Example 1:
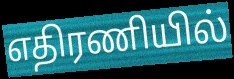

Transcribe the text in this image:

எதிரணியில்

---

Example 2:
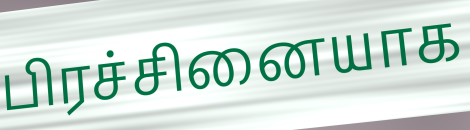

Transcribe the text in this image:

பிரச்சினையாக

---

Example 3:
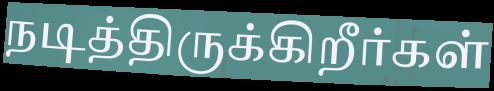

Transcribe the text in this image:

நடித்திருக்கிறீர்கள்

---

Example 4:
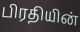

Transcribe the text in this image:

பிரதியின்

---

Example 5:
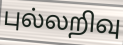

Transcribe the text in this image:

புல்லறிவு